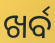
ଖର୍ବ